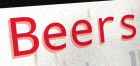
Beers